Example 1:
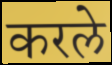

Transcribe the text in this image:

करले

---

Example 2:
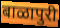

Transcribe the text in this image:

बाळापुरी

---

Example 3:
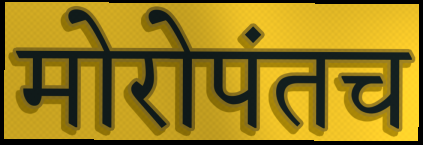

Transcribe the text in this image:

मोरोपंतच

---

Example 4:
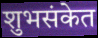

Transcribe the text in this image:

शुभसंकेत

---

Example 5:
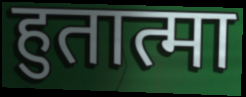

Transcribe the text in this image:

हुतात्मा